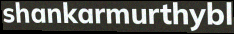
shankarmurthybl